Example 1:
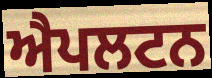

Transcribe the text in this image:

ਐਪਲਟਨ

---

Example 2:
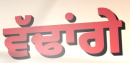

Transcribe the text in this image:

ਵੱਢਾਂਗੇ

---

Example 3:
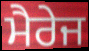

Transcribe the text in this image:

ਮੈਰੇਜ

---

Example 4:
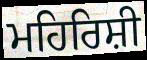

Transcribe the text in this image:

ਮਹਿਰਿਸ਼ੀ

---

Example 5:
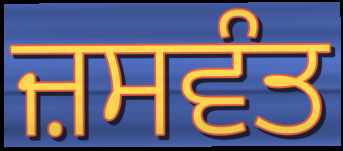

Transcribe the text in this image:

ਜ਼ਸਵੰਤ